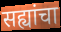
सह्यांचा